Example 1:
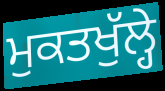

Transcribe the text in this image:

ਮੁਕਤਖੁੱਲ੍ਹੇ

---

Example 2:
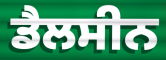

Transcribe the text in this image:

ਡੈਲਸੀਨ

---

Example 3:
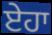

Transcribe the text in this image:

ਏਹਾ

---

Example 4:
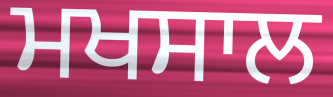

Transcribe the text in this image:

ਮਖਸਾਲ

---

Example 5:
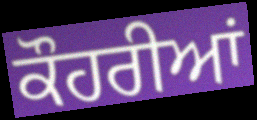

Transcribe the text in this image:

ਕੌਹਰੀਆਂ